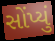
સોંપ્યું